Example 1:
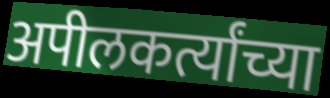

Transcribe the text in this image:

अपीलकर्त्यांच्या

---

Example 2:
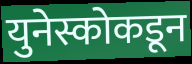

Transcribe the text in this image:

युनेस्कोकडून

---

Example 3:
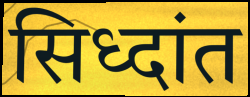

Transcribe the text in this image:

सिध्दांत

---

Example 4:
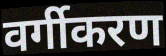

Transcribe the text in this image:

वर्गीकरण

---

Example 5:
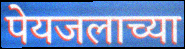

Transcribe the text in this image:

पेयजलाच्या